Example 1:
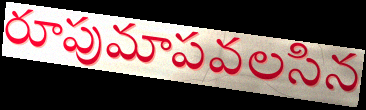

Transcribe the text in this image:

రూపుమాపవలసిన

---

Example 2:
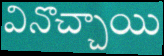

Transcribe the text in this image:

వినొచ్చాయి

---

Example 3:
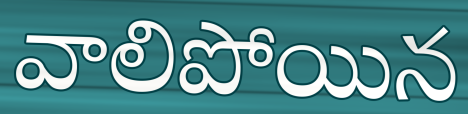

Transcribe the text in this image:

వాలిపోయిన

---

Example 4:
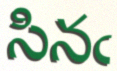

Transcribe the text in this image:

సినఁ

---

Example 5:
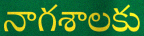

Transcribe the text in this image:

నాగశాలకు